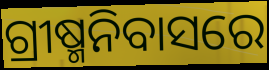
ଗ୍ରୀଷ୍ମନିବାସରେ